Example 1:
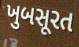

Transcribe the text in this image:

ખુબસૂરત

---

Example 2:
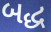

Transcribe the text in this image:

બદ્ધ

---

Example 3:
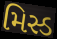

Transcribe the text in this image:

મિસ્ડ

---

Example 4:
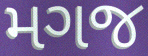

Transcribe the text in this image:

મગજ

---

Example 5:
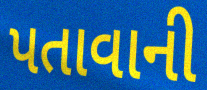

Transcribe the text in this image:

પતાવાની